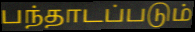
பந்தாடப்படும்